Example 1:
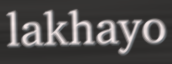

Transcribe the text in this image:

lakhayo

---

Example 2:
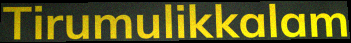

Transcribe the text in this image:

Tirumulikkalam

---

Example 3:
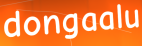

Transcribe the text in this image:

dongaalu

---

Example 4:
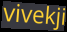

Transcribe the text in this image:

vivekji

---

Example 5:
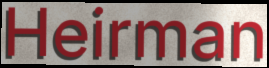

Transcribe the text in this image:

Heirman